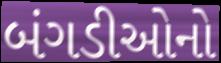
બંગડીઓનો